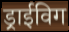
ड्राईविग